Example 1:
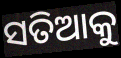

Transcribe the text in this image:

ସତିଆକୁ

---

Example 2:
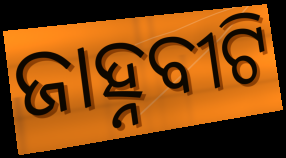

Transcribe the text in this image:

ଜାହ୍ନବୀଟି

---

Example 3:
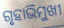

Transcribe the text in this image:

ଗୃହାଭିମୁଖୀ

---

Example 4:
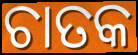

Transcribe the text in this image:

ଚାତକ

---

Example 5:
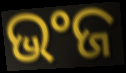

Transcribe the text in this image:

ଭଂଜ